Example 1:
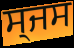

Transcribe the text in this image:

ਸ੍ਜਸ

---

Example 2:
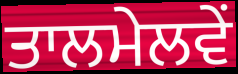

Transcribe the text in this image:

ਤਾਲਮੇਲਵੇਂ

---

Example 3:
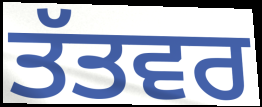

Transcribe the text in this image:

ਤੱਤਵਰ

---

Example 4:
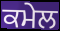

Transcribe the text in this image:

ਕਮੇਲ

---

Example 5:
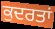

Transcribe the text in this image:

ਕੁਦਰਤਾਂ